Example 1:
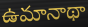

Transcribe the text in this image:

ఉమానాథా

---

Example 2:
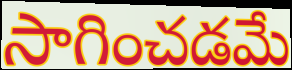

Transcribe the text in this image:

సాగించడమే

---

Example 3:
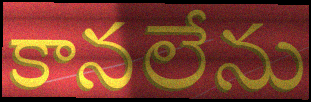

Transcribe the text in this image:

కానలేను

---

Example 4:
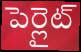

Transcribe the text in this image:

పెర్లైట్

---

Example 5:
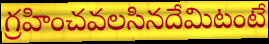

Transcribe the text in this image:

గ్రహించవలసినదేమిటంటే